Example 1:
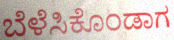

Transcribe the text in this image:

ಬೆಳೆಸಿಕೊಂಡಾಗ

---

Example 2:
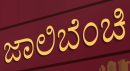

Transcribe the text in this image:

ಜಾಲಿಬೆಂಚಿ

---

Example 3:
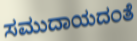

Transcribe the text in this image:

ಸಮುದಾಯದಂತೆ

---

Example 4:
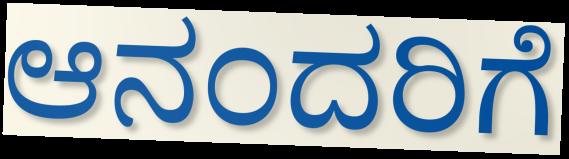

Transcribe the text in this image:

ಆನಂದರಿಗೆ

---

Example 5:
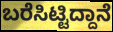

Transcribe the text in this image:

ಬರೆಸಿಟ್ಟಿದ್ದಾನೆ